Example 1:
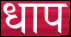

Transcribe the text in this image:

धाप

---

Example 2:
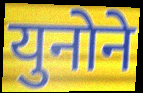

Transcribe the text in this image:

युनोने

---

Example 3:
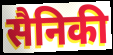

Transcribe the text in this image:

सैनिकी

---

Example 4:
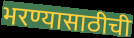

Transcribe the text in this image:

भरण्यासाठीची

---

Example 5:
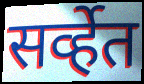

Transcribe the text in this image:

सर्व्हेत